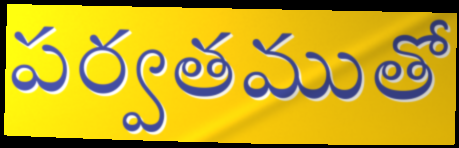
పర్వతముతో